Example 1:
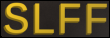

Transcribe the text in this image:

SLFF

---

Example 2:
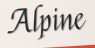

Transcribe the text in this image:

Alpine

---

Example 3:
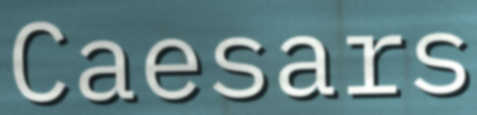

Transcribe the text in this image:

Caesars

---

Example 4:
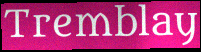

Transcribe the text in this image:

Tremblay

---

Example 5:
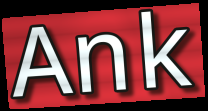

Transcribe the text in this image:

Ank